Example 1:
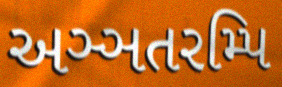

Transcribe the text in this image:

અઞ્ઞતરમ્પિ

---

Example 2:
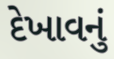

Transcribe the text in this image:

દેખાવનું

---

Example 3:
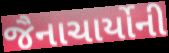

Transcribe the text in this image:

જૈનાચાર્યોની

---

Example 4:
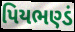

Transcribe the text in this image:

પિયભણ્ડં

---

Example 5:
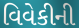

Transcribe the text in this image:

વિવેકીની